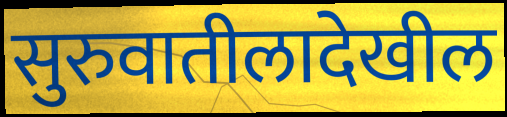
सुरुवातीलादेखील